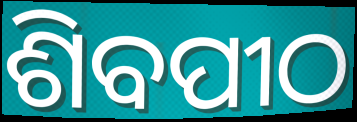
ଶିବପୀଠ